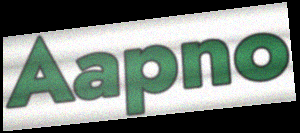
Aapno